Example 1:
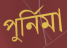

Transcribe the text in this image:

পুর্নিমা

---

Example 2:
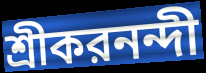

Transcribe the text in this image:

শ্রীকরনন্দী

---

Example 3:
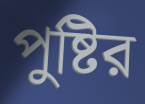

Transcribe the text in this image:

পুষ্টির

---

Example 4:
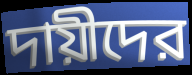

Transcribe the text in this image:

দায়ীদের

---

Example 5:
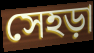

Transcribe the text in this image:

সেহড়া